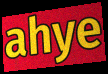
ahye